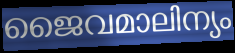
ജൈവമാലിന്യം